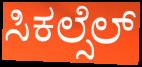
ಸಿಕಲ್ಸೆಲ್